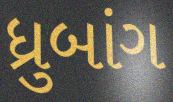
ધ્રુબાંગ